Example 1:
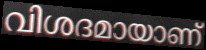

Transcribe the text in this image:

വിശദമായാണ്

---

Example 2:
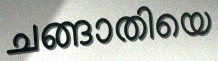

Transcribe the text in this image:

ചങ്ങാതിയെ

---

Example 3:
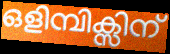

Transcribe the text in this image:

ഒളിമ്പിക്സിന്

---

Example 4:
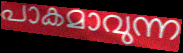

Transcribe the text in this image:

പാകമാവുന്ന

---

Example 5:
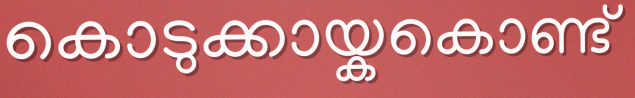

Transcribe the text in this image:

കൊടുക്കായ്കകൊണ്ട്